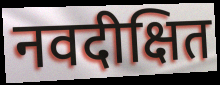
नवदीक्षित